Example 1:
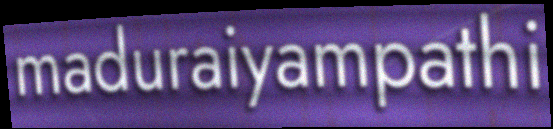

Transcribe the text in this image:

maduraiyampathi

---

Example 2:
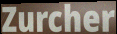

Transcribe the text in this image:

Zurcher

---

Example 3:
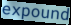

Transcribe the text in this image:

expound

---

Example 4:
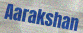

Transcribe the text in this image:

Aarakshan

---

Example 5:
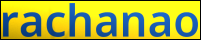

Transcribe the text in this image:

rachanao